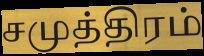
சமுத்திரம்